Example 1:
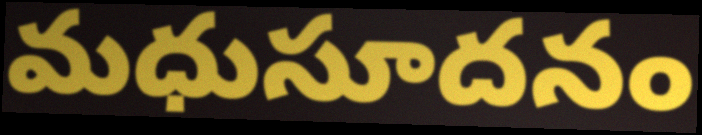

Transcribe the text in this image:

మధుసూదనం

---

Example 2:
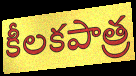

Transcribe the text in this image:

కీలకపాత్ర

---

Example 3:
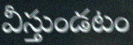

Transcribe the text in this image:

వీస్తుండటం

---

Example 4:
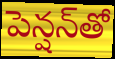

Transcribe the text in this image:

పెన్షన్‌తో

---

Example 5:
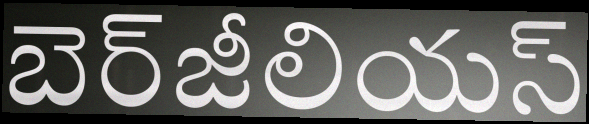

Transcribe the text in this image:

బెర్‌జీలియస్